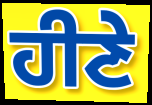
ਹੀਣੇ